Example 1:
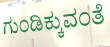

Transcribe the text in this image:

ಗುಂಡಿಕ್ಕುವಂತೆ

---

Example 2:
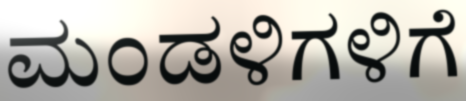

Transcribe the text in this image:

ಮಂಡಳಿಗಳಿಗೆ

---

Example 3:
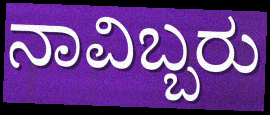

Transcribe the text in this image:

ನಾವಿಬ್ಬರು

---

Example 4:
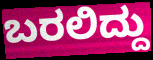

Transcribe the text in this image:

ಬರಲಿದ್ದು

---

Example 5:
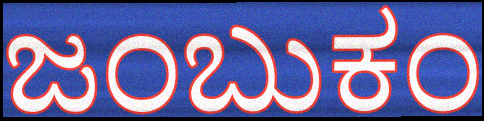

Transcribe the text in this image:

ಜಂಬುಕಂ